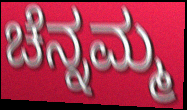
ಚೆನ್ನಮ್ಮ